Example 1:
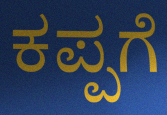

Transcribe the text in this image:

ಕಪ್ಪಗೆ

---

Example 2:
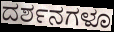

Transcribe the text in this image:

ದರ್ಶನಗಳೂ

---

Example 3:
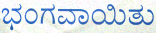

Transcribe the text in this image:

ಭಂಗವಾಯಿತು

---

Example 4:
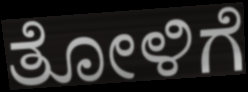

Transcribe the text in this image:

ತೋಳಿಗೆ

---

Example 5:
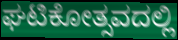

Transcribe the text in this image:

ಘಟಿಕೋತ್ಸವದಲ್ಲಿ